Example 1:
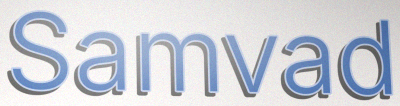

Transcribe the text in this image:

Samvad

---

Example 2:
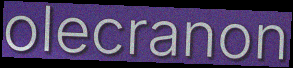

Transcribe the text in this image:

olecranon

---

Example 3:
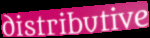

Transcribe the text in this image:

distributive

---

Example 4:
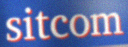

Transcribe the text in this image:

sitcom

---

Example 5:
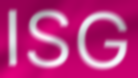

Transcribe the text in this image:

ISG